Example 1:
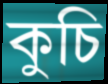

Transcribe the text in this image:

কুচি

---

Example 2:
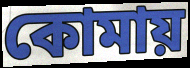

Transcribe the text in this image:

কোমায়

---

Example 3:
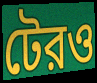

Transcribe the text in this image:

টেরও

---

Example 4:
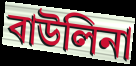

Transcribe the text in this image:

বাউলিনা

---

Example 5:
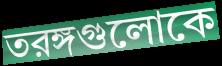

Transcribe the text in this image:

তরঙ্গগুলোকে